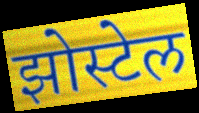
झोस्टेल